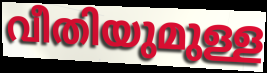
വീതിയുമുള്ള